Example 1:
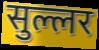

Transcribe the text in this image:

सुल्लर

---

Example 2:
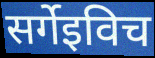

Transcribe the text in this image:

सर्गेइविच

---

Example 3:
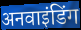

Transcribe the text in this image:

अनवाइंडिंग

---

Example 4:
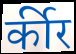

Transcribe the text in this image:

र्कीर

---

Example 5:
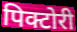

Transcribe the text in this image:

पिक्टोरी